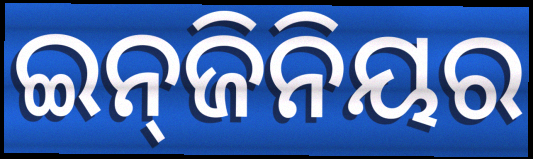
ଇନ୍‌ଜିନିୟର